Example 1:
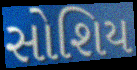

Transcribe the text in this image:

સોશિય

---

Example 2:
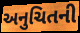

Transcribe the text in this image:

અનુચિતની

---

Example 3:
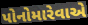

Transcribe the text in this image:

પોનોમારેવાએ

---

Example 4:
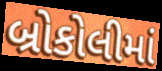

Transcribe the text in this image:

બ્રોકોલીમાં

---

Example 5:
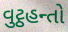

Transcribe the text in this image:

વુટ્ઠહન્તો